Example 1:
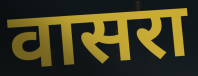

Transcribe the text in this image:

वासरा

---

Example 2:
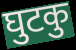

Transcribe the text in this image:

घुटकु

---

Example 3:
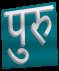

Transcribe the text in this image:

पुरु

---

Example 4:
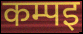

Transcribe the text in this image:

कम्पइ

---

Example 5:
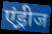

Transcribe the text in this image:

एंड्रीज